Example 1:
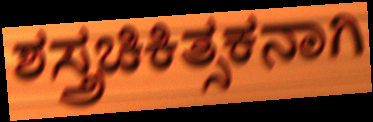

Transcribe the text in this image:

ಶಸ್ತ್ರಚಿಕಿತ್ಸಕನಾಗಿ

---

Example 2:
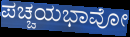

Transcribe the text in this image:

ಪಚ್ಚಯಭಾವೋ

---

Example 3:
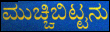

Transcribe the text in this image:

ಮುಚ್ಚಿಬಿಟ್ಟನು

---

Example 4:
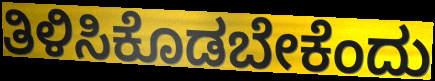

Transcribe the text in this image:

ತಿಳಿಸಿಕೊಡಬೇಕೆಂದು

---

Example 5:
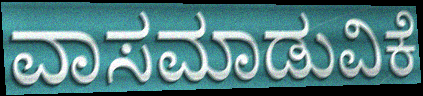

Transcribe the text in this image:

ವಾಸಮಾಡುವಿಕೆ